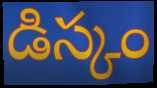
డిస్కం